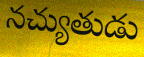
నచ్యుతుడు